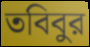
তবিবুর